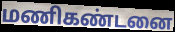
மணிகண்டனை